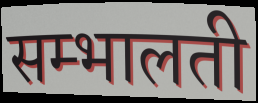
सम्भालती